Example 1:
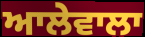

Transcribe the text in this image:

ਆਲੇਵਾਲਾ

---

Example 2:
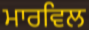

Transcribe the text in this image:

ਮਾਰਵਿਲ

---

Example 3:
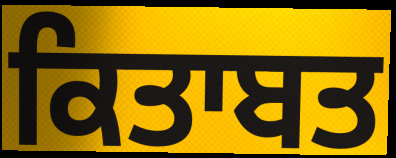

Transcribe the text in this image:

ਕਿਤਾਬਤ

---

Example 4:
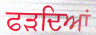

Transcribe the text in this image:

ਫੜਦਿਆਂ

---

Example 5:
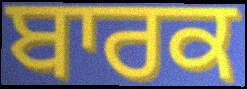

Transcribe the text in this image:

ਬਾਰਕ